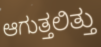
ಆಗುತ್ತಲಿತ್ತು